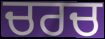
ਚਰਚ